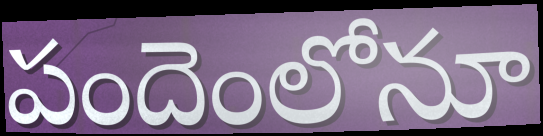
పందెంలోనూ